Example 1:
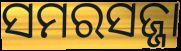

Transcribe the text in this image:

ସମରସଜ୍ଜା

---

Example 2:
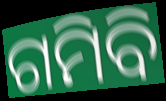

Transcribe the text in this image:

ଗମିବି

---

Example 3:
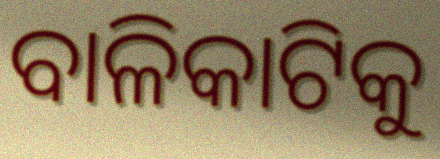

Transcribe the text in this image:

ବାଳିକାଟିକୁ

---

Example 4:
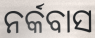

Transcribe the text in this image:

ନର୍କବାସ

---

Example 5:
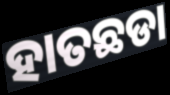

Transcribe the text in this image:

ହାତଛଡା